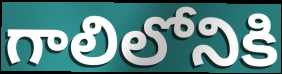
గాలిలోనికి